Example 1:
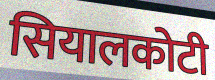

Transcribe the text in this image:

सियालकोटी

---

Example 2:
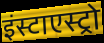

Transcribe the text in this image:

इंस्टाएस्ट्रो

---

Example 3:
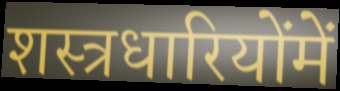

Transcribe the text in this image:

शस्त्रधारियोंमें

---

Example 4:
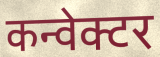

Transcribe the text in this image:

कन्वेक्टर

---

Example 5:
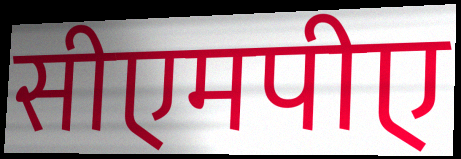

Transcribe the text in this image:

सीएमपीए